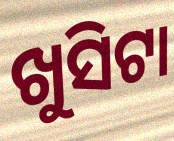
ଖୁସିଟା